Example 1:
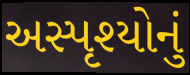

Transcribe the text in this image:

અસ્પૃશ્યોનું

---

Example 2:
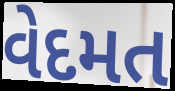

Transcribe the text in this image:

વેદમત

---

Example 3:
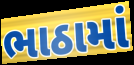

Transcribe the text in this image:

ભાઠામાં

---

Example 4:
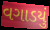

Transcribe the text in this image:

વગાડયું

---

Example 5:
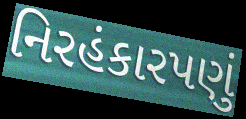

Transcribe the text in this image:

નિરહંકારપણું